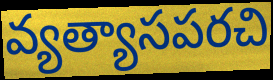
వ్యత్యాసపరచి